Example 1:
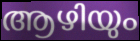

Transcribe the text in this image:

ആഴിയും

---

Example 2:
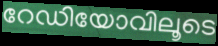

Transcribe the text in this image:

റേഡിയോവിലൂടെ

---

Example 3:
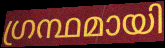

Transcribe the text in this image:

ഗ്രന്ഥമായി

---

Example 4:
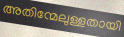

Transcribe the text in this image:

അതിന്മേലുള്ളതായി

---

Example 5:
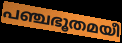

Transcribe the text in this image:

പഞ്ചഭൂതമയീ